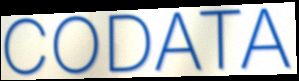
CODATA